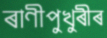
ৰাণীপুখুৰীৰ